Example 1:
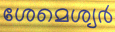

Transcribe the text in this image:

ശേമെശ്യർ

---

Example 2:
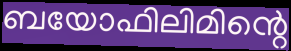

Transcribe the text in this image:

ബയോഫിലിമിന്റെ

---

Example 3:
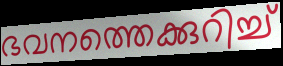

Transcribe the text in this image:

ഭവനത്തെക്കുറിച്ച്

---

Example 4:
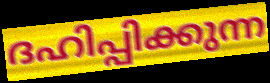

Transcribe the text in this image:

ദഹിപ്പിക്കുന്ന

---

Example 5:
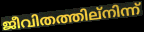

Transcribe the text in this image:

ജീവിതത്തില്നിന്ന്